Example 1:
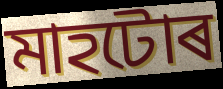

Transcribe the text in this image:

মাহটোৰ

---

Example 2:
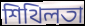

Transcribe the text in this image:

শিথিলতা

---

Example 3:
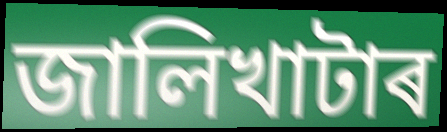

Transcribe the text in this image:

জালিখাটাৰ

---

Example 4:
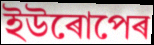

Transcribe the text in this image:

ইউৰোপেৰ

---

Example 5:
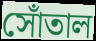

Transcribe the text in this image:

সোঁতাল